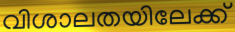
വിശാലതയിലേക്ക്